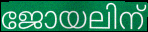
ജോയലിന്